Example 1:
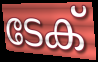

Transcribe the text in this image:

ടേക്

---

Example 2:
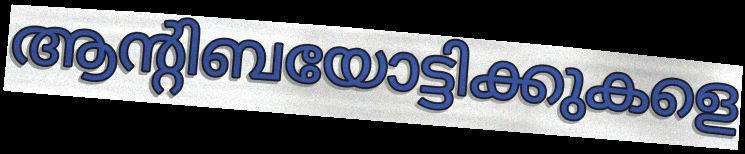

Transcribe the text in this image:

ആന്റിബയോട്ടിക്കുകളെ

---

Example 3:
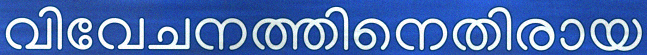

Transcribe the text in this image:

വിവേചനത്തിനെതിരായ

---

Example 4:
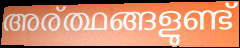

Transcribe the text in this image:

അര്ത്ഥങ്ങളുണ്ട്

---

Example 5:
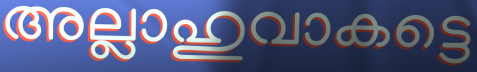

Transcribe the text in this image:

അല്ലാഹുവാകട്ടെ